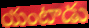
యంటాడు